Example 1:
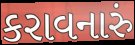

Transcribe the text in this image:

કરાવનારું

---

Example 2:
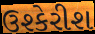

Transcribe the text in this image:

ઉશ્કેરીશ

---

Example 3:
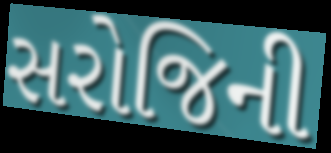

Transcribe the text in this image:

સરોજિની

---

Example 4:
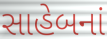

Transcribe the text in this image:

સાહેબનાં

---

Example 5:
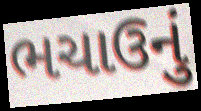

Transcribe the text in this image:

ભચાઉનું